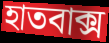
হাতবাক্স